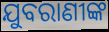
ଯୁବରାଣୀଙ୍କ